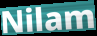
Nilam